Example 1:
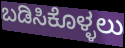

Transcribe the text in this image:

ಬಡಿಸಿಕೊಳ್ಳಲು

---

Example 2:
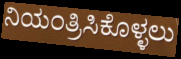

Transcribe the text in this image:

ನಿಯಂತ್ರಿಸಿಕೊಳ್ಳಲು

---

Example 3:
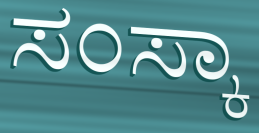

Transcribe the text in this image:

ಸಂಸ್ಕಾ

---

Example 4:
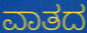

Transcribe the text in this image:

ವಾತದ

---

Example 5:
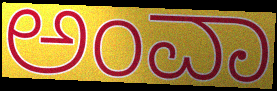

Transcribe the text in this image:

ಅಂವಾ